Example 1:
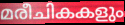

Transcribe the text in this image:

മരീചികകളും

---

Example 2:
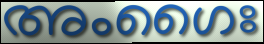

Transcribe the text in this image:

അംഗൈഃ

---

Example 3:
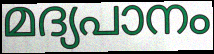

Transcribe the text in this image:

മദ്യപാനം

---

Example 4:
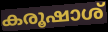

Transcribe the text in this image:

കരൂഷാശ്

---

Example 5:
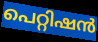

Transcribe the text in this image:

പെറ്റിഷൻ